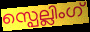
സ്പെല്ലിംഗ്